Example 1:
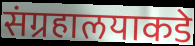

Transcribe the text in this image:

संग्रहालयाकडे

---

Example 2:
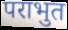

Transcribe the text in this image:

पराभुत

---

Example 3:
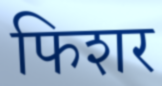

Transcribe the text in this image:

फिशर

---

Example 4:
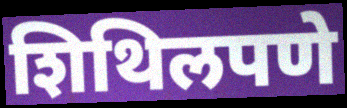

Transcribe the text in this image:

शिथिलपणे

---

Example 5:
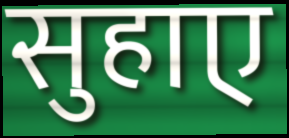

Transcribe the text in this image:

सुहाए